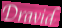
Dravid